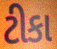
ટીકા